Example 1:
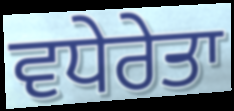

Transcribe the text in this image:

ਵਧੇਰੇਤਾ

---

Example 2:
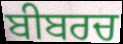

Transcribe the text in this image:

ਬੀਬਰਚ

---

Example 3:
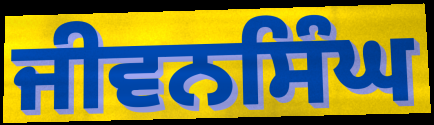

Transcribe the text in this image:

ਜੀਵਨਸਿੰਘ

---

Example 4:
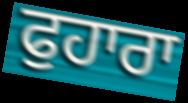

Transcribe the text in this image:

ਫੁਹਾਰਾ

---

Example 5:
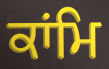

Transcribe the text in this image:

ਕਾਂਮਿ